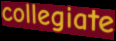
collegiate